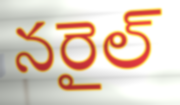
నరైల్